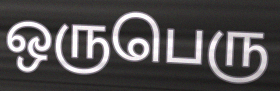
ஒருபெரு